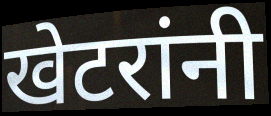
खेटरांनी